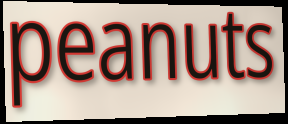
peanuts